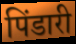
पिंडारी